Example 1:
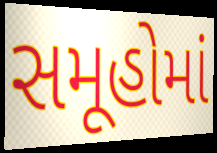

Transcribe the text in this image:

સમૂહોમાં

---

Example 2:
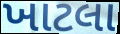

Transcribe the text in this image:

ખાટલા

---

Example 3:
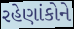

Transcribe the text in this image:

રહેણાંકોને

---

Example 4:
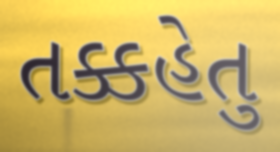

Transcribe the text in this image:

તક્કહેતુ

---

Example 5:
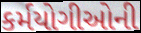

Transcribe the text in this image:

કર્મયોગીઓની